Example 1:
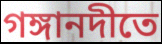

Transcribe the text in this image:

গঙ্গানদীতে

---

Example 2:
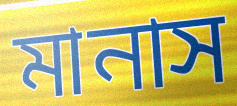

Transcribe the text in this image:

মানাস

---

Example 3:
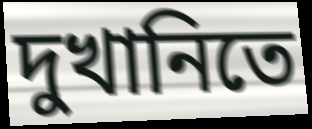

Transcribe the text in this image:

দুখানিতে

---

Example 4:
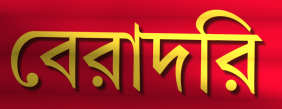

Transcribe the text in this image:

বেরাদরি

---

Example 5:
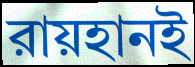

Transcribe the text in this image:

রায়হানই